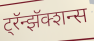
ट्रॅन्झॅक्शन्स